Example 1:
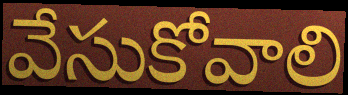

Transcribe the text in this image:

వేసుకోవాలి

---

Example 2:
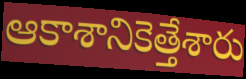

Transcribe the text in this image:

ఆకాశానికెత్తేశారు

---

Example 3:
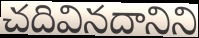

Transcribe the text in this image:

చదివినదానిని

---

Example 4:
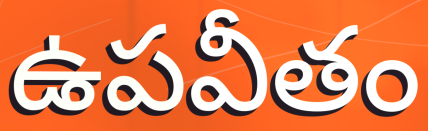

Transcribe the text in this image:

ఉపవీతం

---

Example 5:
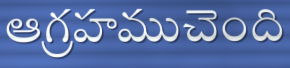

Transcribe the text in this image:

ఆగ్రహముచెంది